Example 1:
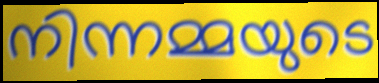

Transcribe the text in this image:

നിന്നമ്മയുടെ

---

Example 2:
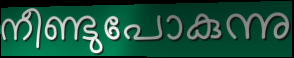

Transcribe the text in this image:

നീണ്ടുപോകുന്നു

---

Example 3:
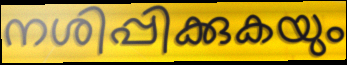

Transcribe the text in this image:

നശിപ്പിക്കുകയും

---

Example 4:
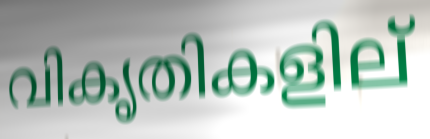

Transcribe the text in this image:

വികൃതികളില്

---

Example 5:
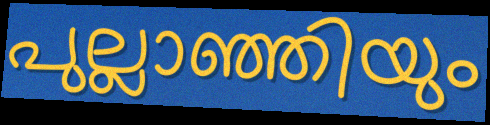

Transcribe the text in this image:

പുല്ലാഞ്ഞിയും